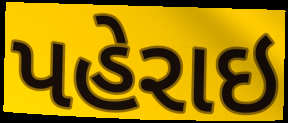
પહેરાઇ